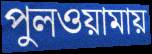
পুলওয়ামায়